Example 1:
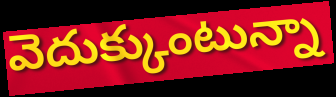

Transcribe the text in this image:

వెదుక్కుంటున్నా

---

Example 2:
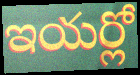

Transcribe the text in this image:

ఇయర్లో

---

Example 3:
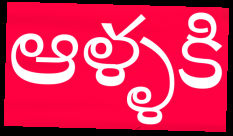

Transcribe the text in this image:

ఆళ్ళకి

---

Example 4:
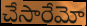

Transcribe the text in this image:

చేసారేమో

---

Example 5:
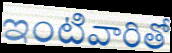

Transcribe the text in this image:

ఇంటివారితో